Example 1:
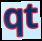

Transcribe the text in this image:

qt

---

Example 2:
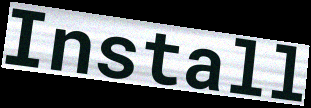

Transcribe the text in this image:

Install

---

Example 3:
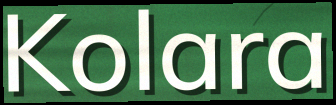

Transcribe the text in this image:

Kolara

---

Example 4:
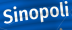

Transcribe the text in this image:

Sinopoli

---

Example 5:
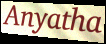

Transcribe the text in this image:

Anyatha